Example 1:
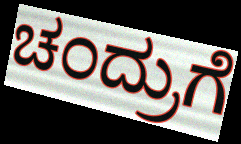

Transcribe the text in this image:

ಚಂದ್ರುಗೆ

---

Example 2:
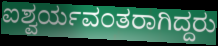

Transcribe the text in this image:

ಐಶ್ವರ್ಯವಂತರಾಗಿದ್ದರು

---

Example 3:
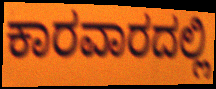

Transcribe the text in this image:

ಕಾರವಾರದಲ್ಲಿ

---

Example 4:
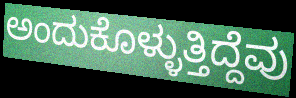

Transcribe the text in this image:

ಅಂದುಕೊಳ್ಳುತ್ತಿದ್ದೆವು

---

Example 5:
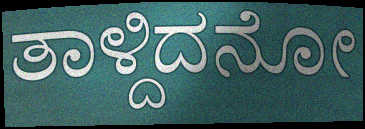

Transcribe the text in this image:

ತಾಳ್ದಿದನೋ